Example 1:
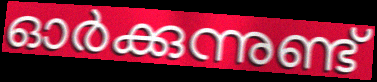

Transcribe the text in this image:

ഓർക്കുന്നുണ്ട്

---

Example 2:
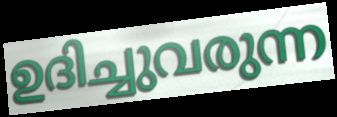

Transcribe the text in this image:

ഉദിച്ചുവരുന്ന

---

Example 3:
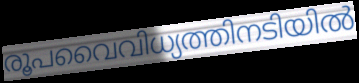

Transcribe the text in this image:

രൂപവൈവിധ്യത്തിനടിയിൽ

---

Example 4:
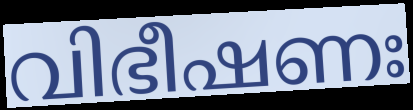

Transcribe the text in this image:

വിഭീഷണഃ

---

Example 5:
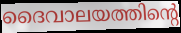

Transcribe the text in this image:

ദൈവാലയത്തിന്റെ